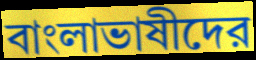
বাংলাভাষীদের